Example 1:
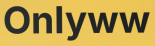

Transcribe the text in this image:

Onlyww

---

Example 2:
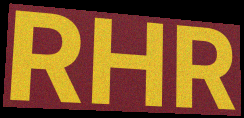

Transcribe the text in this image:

RHR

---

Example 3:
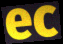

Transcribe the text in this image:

ec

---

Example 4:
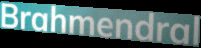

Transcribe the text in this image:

Brahmendral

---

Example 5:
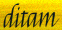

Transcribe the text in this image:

ditam